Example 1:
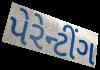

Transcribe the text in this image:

પેરેન્ટીંગ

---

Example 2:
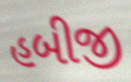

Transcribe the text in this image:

હબીજી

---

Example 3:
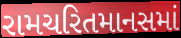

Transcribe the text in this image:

રામચરિતમાનસમાં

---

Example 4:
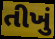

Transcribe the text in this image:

તીખું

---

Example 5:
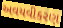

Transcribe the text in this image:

અવયવીકરણ